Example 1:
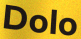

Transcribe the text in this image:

Dolo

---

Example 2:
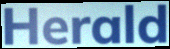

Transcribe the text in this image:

Herald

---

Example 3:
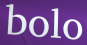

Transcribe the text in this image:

bolo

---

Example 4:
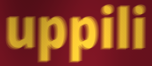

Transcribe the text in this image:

uppili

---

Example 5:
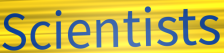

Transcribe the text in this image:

Scientists